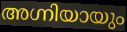
അഗ്നിയായും